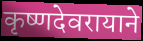
कृष्णदेवरायाने